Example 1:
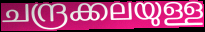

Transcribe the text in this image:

ചന്ദ്രക്കലയുള്ള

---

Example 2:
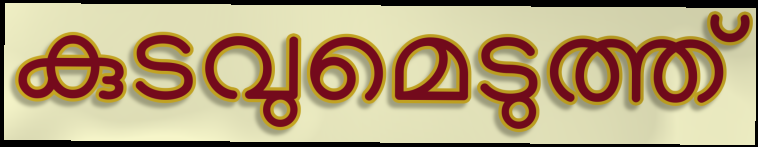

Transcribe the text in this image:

കുടവുമെടുത്ത്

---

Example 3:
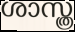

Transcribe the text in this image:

ശാസ്ത്ര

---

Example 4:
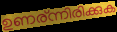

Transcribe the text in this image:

ഉണര്ന്നിരിക്കുക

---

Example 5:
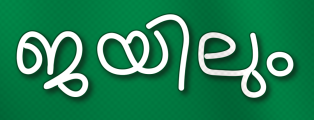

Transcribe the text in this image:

ജയിലും